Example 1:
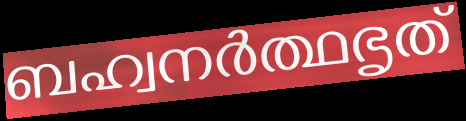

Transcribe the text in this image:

ബഹ്വനർത്ഥഭൃത്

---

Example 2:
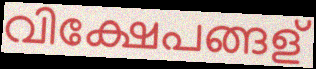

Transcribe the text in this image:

വിക്ഷേപങ്ങള്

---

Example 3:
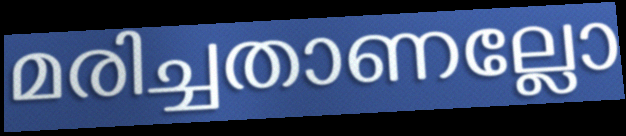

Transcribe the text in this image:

മരിച്ചതാണല്ലോ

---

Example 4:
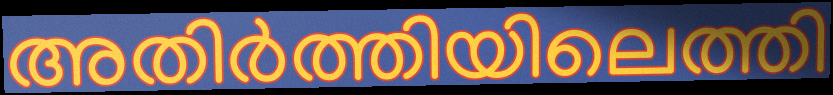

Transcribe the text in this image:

അതിർത്തിയിലെത്തി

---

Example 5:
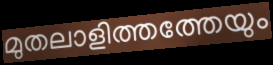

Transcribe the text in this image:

മുതലാളിത്തത്തേയും